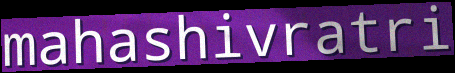
mahashivratri